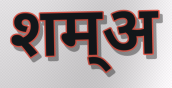
शम्अ